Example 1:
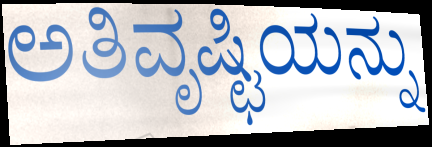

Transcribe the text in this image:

ಅತಿವೃಷ್ಟಿಯನ್ನು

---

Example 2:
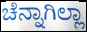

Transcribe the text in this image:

ಚೆನ್ನಾಗಿಲ್ಲಾ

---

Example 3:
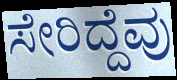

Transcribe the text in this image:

ಸೇರಿದ್ದೆವು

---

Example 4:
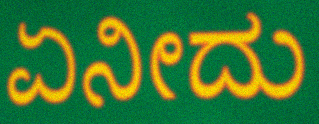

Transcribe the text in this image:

ಏನೀದು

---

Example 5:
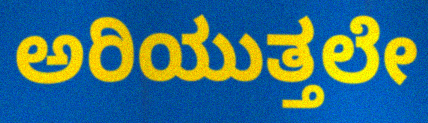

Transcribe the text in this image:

ಅರಿಯುತ್ತಲೇ